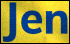
Jen